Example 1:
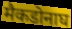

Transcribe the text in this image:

मैकडोनाघ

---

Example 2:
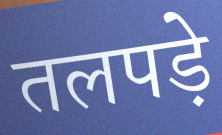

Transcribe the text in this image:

तलपड़े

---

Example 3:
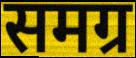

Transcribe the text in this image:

समग्र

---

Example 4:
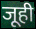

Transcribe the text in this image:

जूही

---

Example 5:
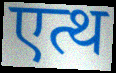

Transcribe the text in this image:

एत्थ